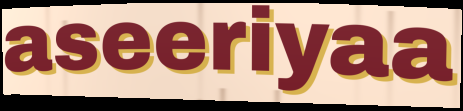
aseeriyaa